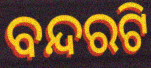
ବନ୍ଦରଟି